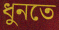
ধুনতে